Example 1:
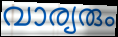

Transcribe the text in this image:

വാര്യരും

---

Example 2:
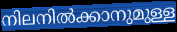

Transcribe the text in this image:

നിലനിൽക്കാനുമുള്ള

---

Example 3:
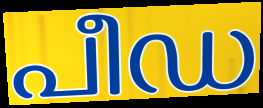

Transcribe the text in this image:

പീഡ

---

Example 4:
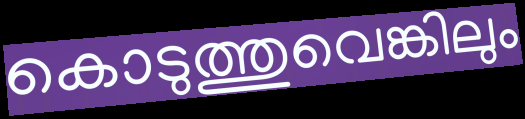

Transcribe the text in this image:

കൊടുത്തുവെങ്കിലും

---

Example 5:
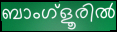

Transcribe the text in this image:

ബാംഗ്ളൂരിൽ